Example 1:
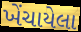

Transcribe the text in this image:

ખેંચાયેલા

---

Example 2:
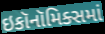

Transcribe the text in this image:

ઇકૉનૉમિક્સમાં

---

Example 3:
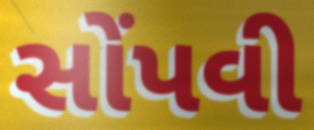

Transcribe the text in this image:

સોંપવી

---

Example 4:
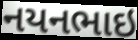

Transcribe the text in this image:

નયનભાઇ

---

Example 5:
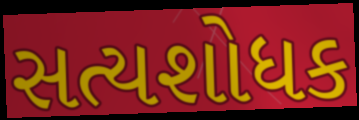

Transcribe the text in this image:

સત્યશોધક